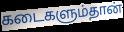
கடைகளும்தான்